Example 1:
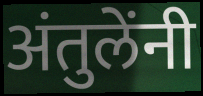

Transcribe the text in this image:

अंतुलेंनी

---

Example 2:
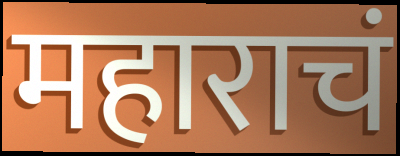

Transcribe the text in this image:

महाराचं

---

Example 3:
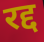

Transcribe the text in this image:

रद्द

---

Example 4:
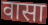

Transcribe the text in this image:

वासा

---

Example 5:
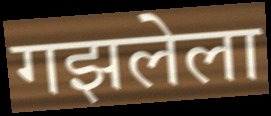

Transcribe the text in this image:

गझलेला